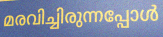
മരവിച്ചിരുന്നപ്പോൾ